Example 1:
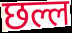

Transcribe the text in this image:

छल्ल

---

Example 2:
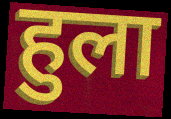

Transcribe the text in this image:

हुला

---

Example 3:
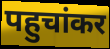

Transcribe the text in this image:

पहुचांकर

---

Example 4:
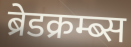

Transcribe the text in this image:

ब्रेडक्रम्ब्स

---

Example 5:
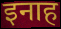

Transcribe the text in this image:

इनाह